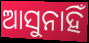
ଆସୁନାହିଁ